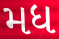
મધ